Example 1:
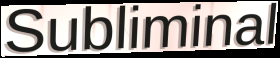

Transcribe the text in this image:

Subliminal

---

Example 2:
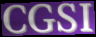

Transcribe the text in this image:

CGSI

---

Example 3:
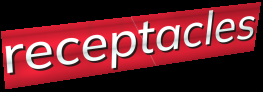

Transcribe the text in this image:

receptacles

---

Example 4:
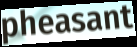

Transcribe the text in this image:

pheasant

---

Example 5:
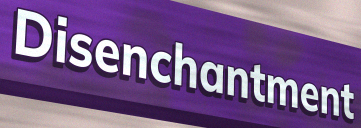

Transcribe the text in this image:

Disenchantment